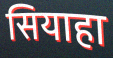
सियाहा